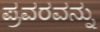
ಪ್ರವರವನ್ನು